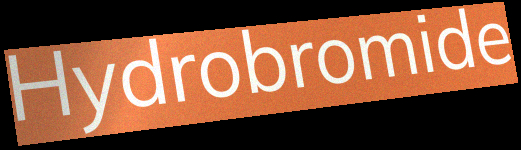
Hydrobromide